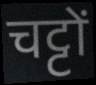
चट्टों